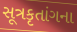
સૂત્રકૃતાંગના